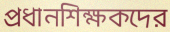
প্রধানশিক্ষকদের